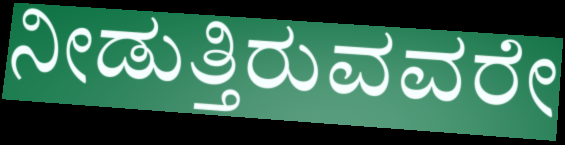
ನೀಡುತ್ತಿರುವವರೇ